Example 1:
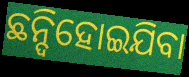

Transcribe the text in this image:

ଛନ୍ଦିହୋଇଯିବା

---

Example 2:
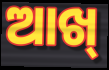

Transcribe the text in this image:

ଆଖ୍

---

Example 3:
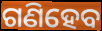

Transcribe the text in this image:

ଗଣିହେବ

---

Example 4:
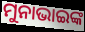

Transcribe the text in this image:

ମୁନାଭାଇଙ୍କ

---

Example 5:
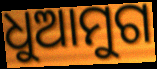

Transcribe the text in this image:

ଧୁଆମୁଗ